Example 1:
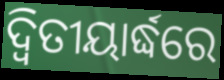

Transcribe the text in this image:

ଦ୍ବିତୀୟାର୍ଦ୍ଧରେ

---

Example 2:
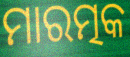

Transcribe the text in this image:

ମାରତ୍ମକ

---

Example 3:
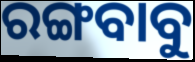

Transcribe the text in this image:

ରଙ୍ଗବାବୁ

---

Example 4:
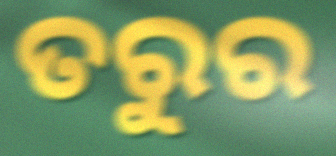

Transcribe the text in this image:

ତରୁର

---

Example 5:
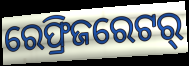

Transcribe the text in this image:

ରେଫ୍ରିଜରେଟର୍